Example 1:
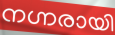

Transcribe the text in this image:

നഗ്നരായി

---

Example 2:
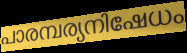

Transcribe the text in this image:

പാരമ്പര്യനിഷേധം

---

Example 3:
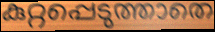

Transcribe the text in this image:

കുറ്റപ്പെടുത്താതെ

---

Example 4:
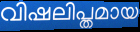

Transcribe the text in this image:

വിഷലിപ്തമായ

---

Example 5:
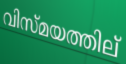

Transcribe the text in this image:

വിസ്മയത്തില്